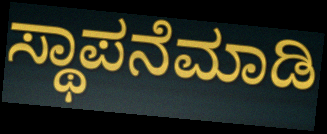
ಸ್ಥಾಪನೆಮಾಡಿ